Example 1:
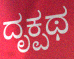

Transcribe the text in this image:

ದೃಕ್ಪಥ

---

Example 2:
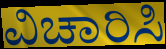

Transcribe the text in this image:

ವಿಚಾರಿಸಿ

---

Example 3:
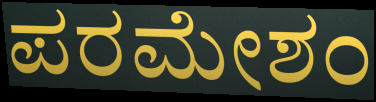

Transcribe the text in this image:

ಪರಮೇಶಂ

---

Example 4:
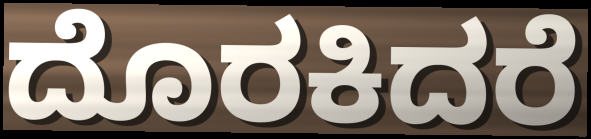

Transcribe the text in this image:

ದೊರಕಿದರೆ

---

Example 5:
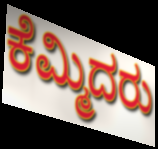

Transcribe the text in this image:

ಕೆಮ್ಮಿದರು